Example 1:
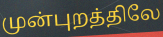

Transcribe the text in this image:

முன்புறத்திலே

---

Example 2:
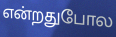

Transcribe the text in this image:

என்றதுபோல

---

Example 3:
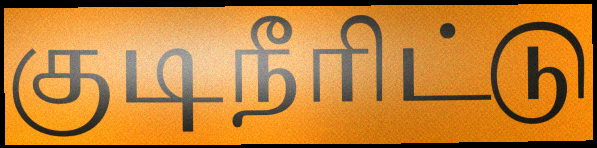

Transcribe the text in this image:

குடிநீரிட்டு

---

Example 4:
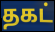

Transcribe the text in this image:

தகட்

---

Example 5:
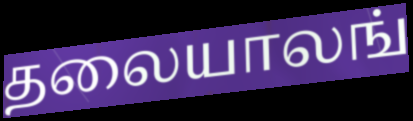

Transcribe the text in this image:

தலையாலங்